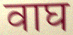
वाघ